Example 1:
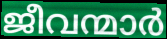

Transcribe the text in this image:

ജീവന്മാർ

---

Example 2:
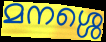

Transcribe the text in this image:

മനശ്ശെ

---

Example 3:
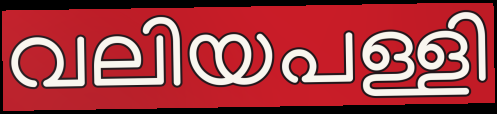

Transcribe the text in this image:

വലിയപള്ളി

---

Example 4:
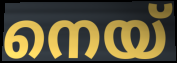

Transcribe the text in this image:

നെയ്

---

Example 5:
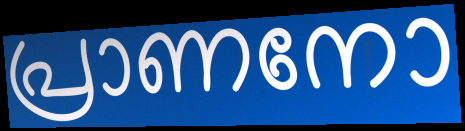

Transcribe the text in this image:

പ്രാണനോ